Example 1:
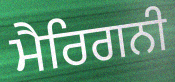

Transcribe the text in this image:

ਮੈਰਿਗਨੀ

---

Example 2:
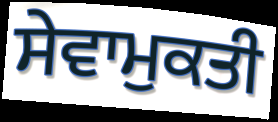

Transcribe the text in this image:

ਸੇਵਾਮੁਕਤੀ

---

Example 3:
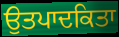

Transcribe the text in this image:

ਉਤਪਾਦਕਿਤਾ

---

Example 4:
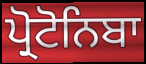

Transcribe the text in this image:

ਪ੍ਰੋਟੋਨਿਬਾ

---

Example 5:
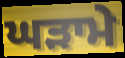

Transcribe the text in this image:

ਘੜਾਮੇ